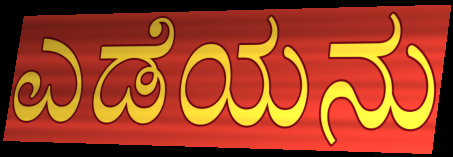
ಎಡೆಯನು